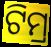
ଟିମ୍ର